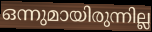
ഒന്നുമായിരുന്നില്ല